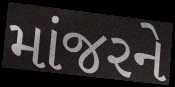
માંજરને